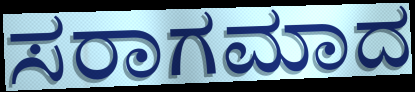
ಸರಾಗಮಾದ